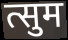
त्सुम